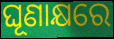
ଘୂଣାକ୍ଷରେ